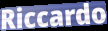
Riccardo